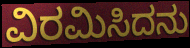
ವಿರಮಿಸಿದನು